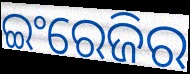
ଇଂରେଜିର